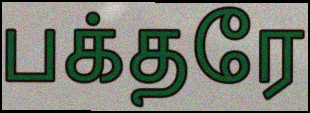
பக்தரே